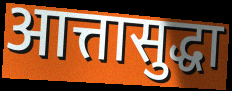
आत्तासुद्धा